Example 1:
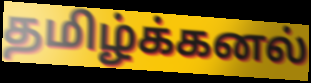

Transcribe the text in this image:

தமிழ்க்கனல்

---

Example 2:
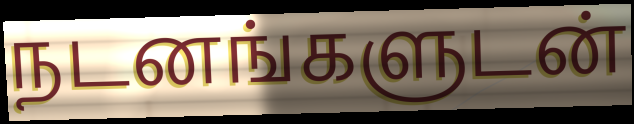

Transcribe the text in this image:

நடனங்களுடன்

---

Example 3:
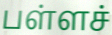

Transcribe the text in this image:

பள்ளச்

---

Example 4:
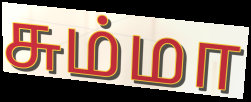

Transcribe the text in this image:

சும்மா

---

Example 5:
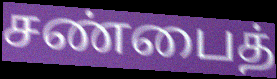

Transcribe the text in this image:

சண்பைத்